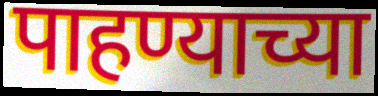
पाहण्याच्या